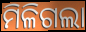
ମିଳିଗଲା